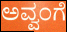
ಅವ್ವಂಗೆ